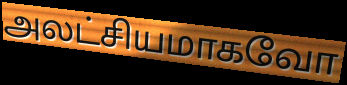
அலட்சியமாகவோ